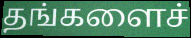
தங்களைச்